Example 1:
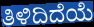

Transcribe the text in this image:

ತಿಳಿದಿದೆಯೆ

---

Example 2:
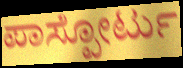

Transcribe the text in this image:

ಪಾಸ್ಪೋರ್ಟು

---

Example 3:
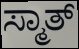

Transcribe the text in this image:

ಸ್ಮಾತ್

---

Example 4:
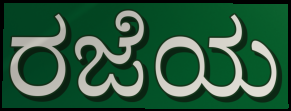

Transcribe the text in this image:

ರಜೆಯ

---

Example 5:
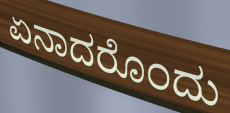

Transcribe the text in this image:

ಏನಾದರೊಂದು